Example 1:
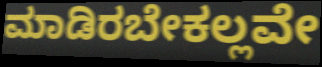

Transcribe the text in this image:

ಮಾಡಿರಬೇಕಲ್ಲವೇ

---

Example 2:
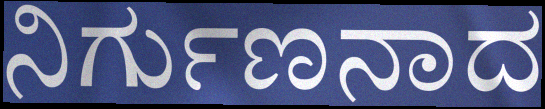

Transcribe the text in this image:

ನಿರ್ಗುಣನಾದ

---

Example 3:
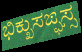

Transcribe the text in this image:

ಭಿಕ್ಖುಸಙ್ಘಸ್ಸ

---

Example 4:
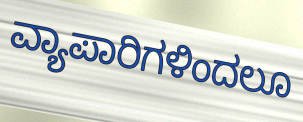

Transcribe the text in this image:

ವ್ಯಾಪಾರಿಗಳಿಂದಲೂ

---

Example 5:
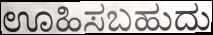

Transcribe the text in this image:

ಊಹಿಸಬಹುದು